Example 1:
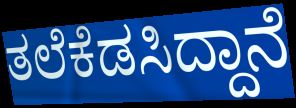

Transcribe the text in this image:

ತಲೆಕೆಡಸಿದ್ದಾನೆ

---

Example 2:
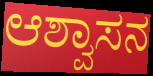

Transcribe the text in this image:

ಆಶ್ವಾಸನ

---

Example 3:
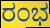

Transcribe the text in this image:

ರಂಭ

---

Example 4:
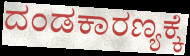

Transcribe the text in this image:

ದಂಡಕಾರಣ್ಯಕ್ಕೆ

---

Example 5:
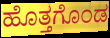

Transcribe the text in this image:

ಹೊತ್ತಗೊಂಡ